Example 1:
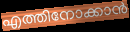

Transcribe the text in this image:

എത്തിനോക്കാൻ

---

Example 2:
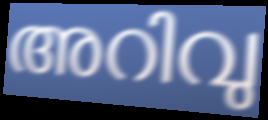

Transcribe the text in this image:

അറിവു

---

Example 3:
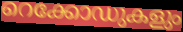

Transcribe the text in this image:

റെക്കോഡുകളും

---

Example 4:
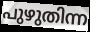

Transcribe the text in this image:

പുഴുതിന്ന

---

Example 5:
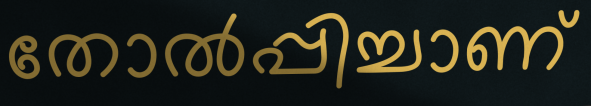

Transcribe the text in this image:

തോൽപ്പിച്ചാണ്